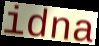
idna